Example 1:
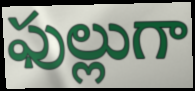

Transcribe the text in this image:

ఫుల్లుగా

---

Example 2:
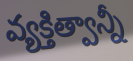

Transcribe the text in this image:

వ్యక్తిత్వాన్నీ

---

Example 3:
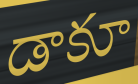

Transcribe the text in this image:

డాకూ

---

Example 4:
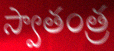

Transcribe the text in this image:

స్వాతంత్ర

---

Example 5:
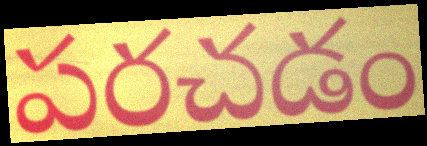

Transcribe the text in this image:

పరచడం